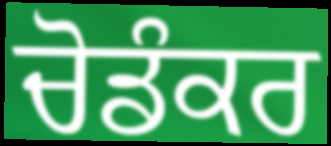
ਚੋਡੰਕਰ